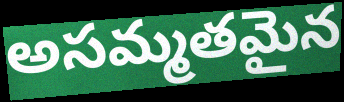
అసమ్మతమైన